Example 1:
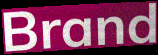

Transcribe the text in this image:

Brand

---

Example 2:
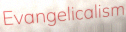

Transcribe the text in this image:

Evangelicalism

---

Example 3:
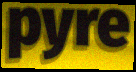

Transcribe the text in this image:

pyre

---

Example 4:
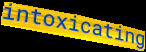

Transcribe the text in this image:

intoxicating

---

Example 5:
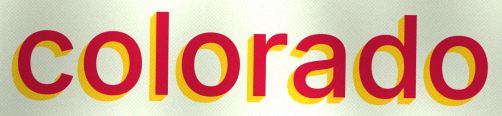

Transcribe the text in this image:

colorado